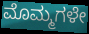
ಮೊಮ್ಮಗಳೇ